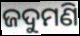
ଜଦୁମଣି